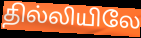
தில்லியிலே